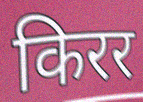
किरर